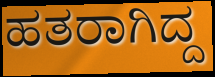
ಹತರಾಗಿದ್ದ